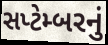
સપ્ટેમ્બરનું